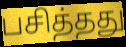
பசித்தது